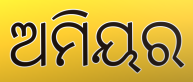
ଅମିୟର